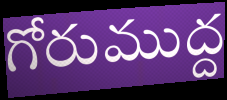
గోరుముద్ద